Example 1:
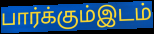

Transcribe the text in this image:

பார்க்கும்இடம்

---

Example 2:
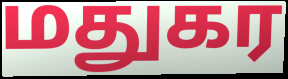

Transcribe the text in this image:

மதுகர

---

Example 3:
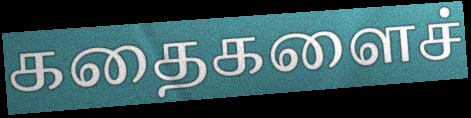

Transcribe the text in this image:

கதைகளைச்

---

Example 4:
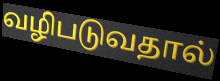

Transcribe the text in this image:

வழிபடுவதால்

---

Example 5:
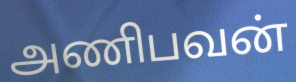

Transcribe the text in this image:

அணிபவன்